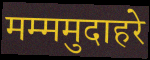
मम्ममुदाहरे